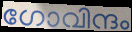
ഗോവിന്ദം